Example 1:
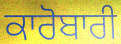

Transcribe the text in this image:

ਕਾਰੋਬਾਰੀ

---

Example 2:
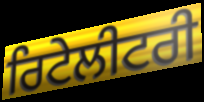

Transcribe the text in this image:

ਰਿਟੇਲੀਟਰੀ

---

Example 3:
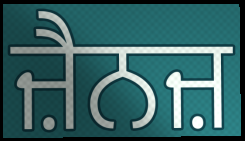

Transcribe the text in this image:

ਜ਼ੈਨਜ਼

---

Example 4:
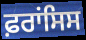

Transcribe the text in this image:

ਫ਼ਰਾਂਸਿਸ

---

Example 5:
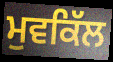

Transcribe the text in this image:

ਮੁਵਕਿੱਲ